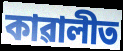
কাৱালীত